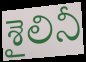
శైలినీ